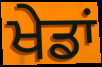
ਖੇਡਾਂ